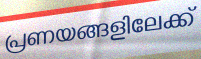
പ്രണയങ്ങളിലേക്ക്